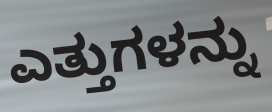
ಎತ್ತುಗಳನ್ನು